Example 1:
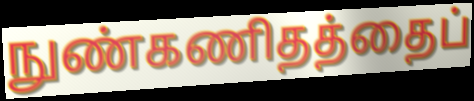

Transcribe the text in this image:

நுண்கணிதத்தைப்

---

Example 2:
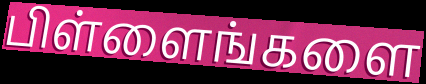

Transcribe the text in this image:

பிள்ளைங்களை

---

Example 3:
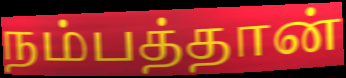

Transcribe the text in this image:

நம்பத்தான்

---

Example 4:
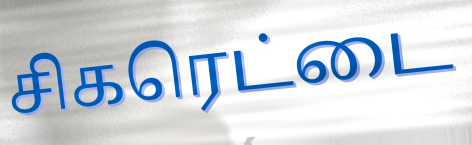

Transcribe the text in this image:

சிகரெட்டை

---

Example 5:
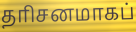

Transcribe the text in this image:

தரிசனமாகப்